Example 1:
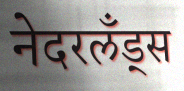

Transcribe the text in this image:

नेदरलँड्स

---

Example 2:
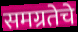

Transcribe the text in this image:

समग्रतेचे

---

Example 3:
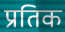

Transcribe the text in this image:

प्रतिक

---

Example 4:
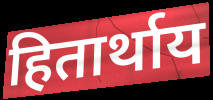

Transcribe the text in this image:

हितार्थाय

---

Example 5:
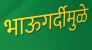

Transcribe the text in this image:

भाऊगर्दीमुळे